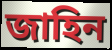
জাহিন